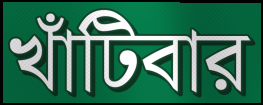
খাঁটিবার